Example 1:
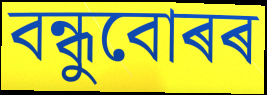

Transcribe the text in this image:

বন্ধুবোৰৰ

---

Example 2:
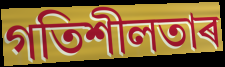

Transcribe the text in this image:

গতিশীলতাৰ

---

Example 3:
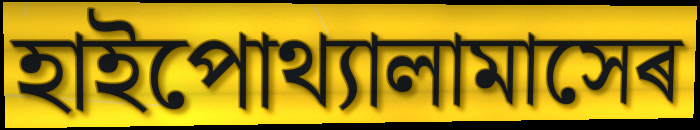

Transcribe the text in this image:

হাইপোথ্যালামাসেৰ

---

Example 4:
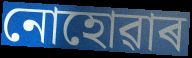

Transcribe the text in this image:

নোহোৱাৰ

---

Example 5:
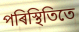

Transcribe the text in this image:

পৰিস্থিতিতে